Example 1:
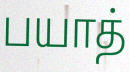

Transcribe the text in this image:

பயாத்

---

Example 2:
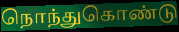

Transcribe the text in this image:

நொந்துகொண்டு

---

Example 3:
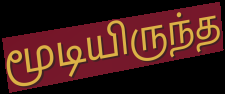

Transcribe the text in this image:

மூடியிருந்த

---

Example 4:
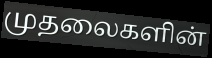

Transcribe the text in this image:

முதலைகளின்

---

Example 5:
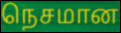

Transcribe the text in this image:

நெசமான